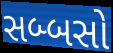
સબ્બસો